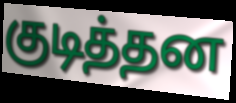
குடித்தன